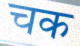
चक